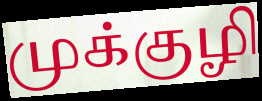
முக்குழி